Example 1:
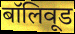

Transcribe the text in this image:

बॉलिवूड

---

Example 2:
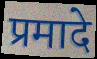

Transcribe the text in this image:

प्रमादे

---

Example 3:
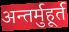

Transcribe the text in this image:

अन्तर्मुहूर्त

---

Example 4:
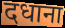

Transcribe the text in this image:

दधाना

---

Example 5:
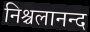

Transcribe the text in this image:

निश्चलानन्द